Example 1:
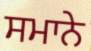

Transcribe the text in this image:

ਸਮਾਨੇ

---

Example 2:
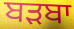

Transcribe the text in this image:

ਬੜਬਾ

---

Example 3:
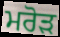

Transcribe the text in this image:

ਮਰੋੜ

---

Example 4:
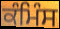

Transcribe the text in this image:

ਕੰਮਿੰਸ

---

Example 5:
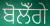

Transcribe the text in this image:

ਬੋਲੋਁਗੇ